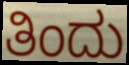
ತಿಂದು